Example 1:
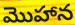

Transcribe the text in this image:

మొహాన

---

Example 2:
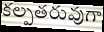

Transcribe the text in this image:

కల్పతరువుగా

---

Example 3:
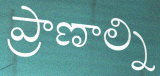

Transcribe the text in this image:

ప్రాణాల్ని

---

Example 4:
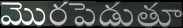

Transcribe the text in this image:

మొరపెడుతూ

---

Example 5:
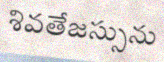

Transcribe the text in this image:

శివతేజస్సును